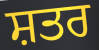
ਸ਼ਤਰ